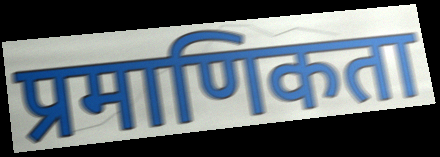
प्रमाणिकता